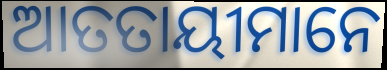
ଆତତାୟୀମାନେ